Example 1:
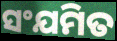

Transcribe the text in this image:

ସଂଯମିତ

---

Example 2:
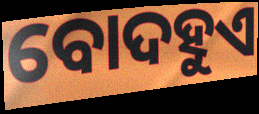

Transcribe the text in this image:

ବୋଦହୁଏ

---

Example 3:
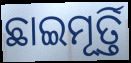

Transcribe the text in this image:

ଛାଇମୂର୍ତ୍ତି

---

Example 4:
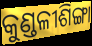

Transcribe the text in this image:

କୁଣ୍ଡଳୀଶିଙ୍ଗା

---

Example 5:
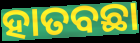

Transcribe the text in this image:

ହାତବଛା